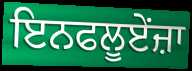
ਇਨਫਲੂਏਂਜ਼ਾ